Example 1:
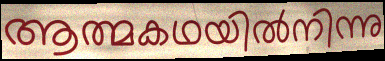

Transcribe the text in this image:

ആത്മകഥയിൽനിന്നു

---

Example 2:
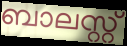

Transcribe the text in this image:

ബാലസ്റ്റ്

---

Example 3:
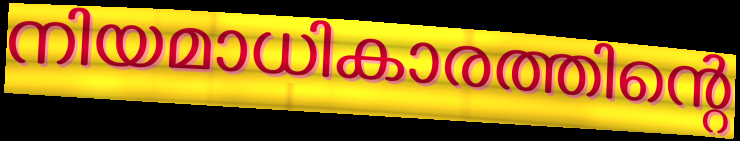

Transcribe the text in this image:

നിയമാധികാരത്തിന്റെ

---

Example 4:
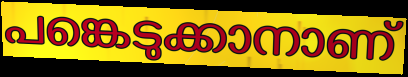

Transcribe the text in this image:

പങ്കെടുക്കാനാണ്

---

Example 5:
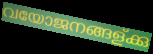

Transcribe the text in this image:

വയോജനങ്ങള്ക്കു